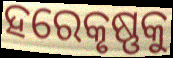
ହରେକୃଷ୍ଣକୁ